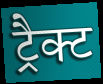
ट्रैक्ट